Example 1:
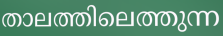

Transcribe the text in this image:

താലത്തിലെത്തുന്ന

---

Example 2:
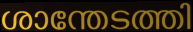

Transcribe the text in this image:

ശാന്തേടത്തി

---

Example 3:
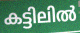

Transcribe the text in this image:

കട്ടിലിൽ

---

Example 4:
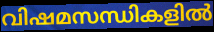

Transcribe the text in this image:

വിഷമസന്ധികളിൽ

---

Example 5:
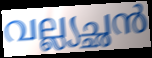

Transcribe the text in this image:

വല്ല്യച്ഛൻ